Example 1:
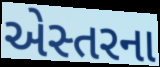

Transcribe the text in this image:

એસ્તરના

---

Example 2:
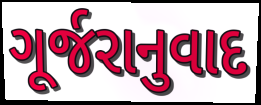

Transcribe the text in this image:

ગૂર્જરાનુવાદ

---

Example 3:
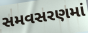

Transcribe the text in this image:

સમવસરણમાં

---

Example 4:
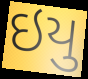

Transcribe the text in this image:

ઇયુ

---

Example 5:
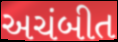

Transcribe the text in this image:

અચંબીત